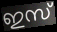
ഇസ്